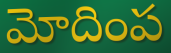
మోదింప